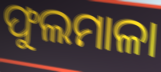
ଫୁଲମାଳା